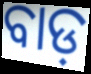
ବାଡ଼